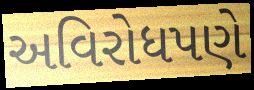
અવિરોધપણે